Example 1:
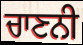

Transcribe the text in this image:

ਚਾਣਨੀ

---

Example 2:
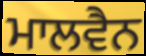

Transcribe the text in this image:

ਮਾਲਵੈਨ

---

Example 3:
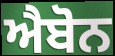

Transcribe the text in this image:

ਐਬੋਨ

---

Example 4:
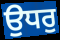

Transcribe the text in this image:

ਉਧਰੁ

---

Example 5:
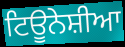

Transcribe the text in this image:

ਟਿਊਨੇਸ਼ੀਆ